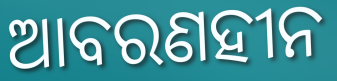
ଆବରଣହୀନ